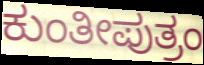
ಕುಂತೀಪುತ್ರಂ